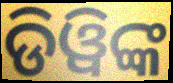
ଡିୱିଙ୍କ